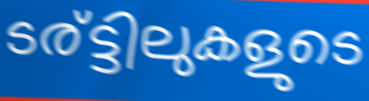
ടര്ട്ടിലുകളുടെ